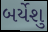
બર્યેશુ